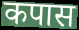
कपास